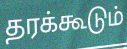
தரக்கூடும்